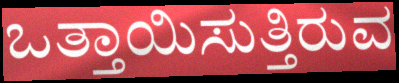
ಒತ್ತಾಯಿಸುತ್ತಿರುವ